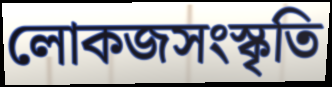
লোকজসংস্কৃতি